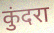
कुंदरा